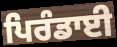
ਪਿਰੰਡਾਈ